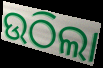
ଉଠିଲା